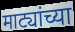
माट्यांच्या